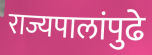
राज्यपालांपुढे